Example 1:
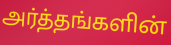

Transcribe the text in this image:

அர்த்தங்களின்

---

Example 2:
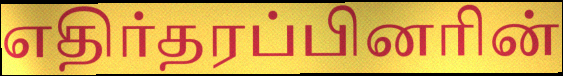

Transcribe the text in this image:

எதிர்தரப்பினரின்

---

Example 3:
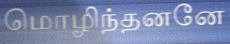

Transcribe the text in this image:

மொழிந்தனனே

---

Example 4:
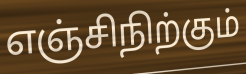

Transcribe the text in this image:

எஞ்சிநிற்கும்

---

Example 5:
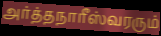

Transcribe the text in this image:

அர்த்தநாரீஸ்வரரும்